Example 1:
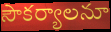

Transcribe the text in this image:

సౌకర్యాలనూ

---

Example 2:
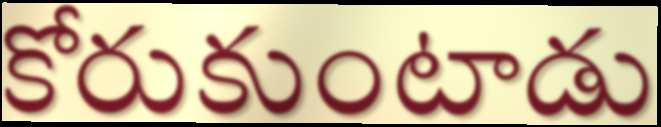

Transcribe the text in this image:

కోరుకుంటాడు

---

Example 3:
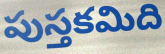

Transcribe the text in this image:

పుస్తకమిది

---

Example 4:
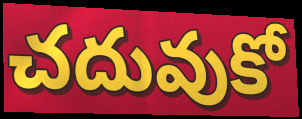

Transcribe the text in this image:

చదువుకో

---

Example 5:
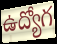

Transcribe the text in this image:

ఉద్యోగ